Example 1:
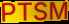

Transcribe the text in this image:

PTSM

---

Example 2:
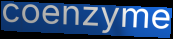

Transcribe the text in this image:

coenzyme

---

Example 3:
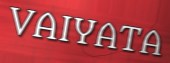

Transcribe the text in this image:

VAIYATA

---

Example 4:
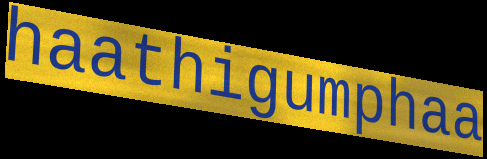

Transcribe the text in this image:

haathigumphaa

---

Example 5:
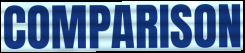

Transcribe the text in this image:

COMPARISON